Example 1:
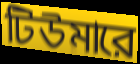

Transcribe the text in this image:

টিউমারে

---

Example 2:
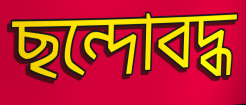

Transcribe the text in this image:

ছন্দোবদ্ধ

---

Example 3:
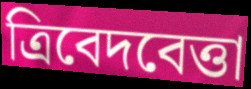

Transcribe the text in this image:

ত্রিবেদবেত্তা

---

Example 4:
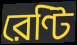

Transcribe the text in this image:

রেণ্টি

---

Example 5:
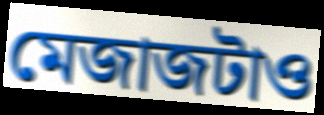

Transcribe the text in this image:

মেজাজটাও